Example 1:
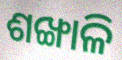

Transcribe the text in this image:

ଶଙ୍ଖାଳି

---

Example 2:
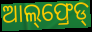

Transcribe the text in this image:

ଆଲ୍‌ଫ୍ରେଡ୍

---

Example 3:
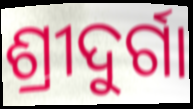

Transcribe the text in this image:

ଶ୍ରୀଦୁର୍ଗା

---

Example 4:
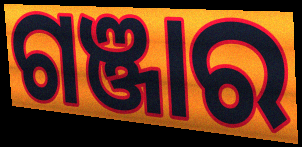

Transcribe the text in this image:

ଗଞ୍ଜାର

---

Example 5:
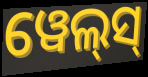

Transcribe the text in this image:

ୱେଲ୍‌ସ୍